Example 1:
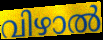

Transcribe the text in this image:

വിഴാൽ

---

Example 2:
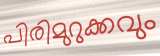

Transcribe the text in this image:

പിരിമുറുക്കവും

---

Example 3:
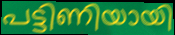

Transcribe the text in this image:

പട്ടിണിയായി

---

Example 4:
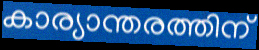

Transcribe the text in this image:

കാര്യാന്തരത്തിന്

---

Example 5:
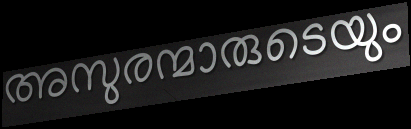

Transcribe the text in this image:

അസുരന്മാരുടെയും